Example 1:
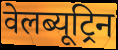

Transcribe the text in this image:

वेलब्यूट्रिन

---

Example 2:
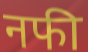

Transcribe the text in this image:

नफी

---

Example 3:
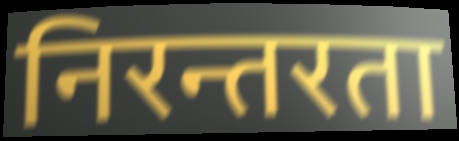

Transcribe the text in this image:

निरन्तरता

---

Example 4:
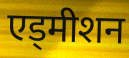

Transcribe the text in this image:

एड्मीशन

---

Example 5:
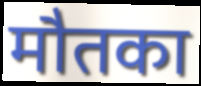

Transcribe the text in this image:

मौतका